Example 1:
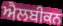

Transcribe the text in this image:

ਐਲਬੀਕਨ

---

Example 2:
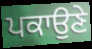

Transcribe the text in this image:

ਪਕਾਉਣੇ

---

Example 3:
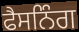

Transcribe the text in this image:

ਫੈਸਨਿੰਗ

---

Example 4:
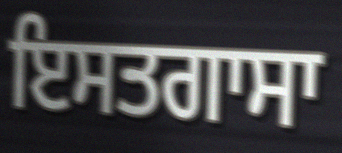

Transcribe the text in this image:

ਇਸਤਗਾਸਾ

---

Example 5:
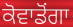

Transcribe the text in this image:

ਕੋਵਾਡੋਂਗਾ